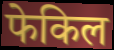
फेकिल